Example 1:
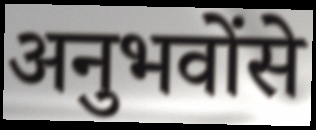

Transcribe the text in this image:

अनुभवोंसे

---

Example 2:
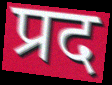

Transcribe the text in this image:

प्रद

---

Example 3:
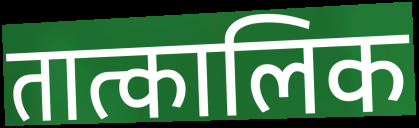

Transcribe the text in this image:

तात्कालिक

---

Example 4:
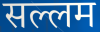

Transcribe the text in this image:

सल्‍लम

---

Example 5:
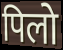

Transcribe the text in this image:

पिलो